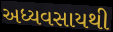
અધ્યવસાયથી